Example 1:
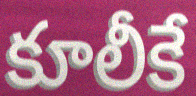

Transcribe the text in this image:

కూలీకే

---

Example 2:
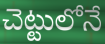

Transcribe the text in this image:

చెట్టులోనే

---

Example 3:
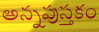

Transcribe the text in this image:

అన్నపుస్తకం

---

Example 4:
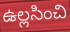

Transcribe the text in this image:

ఉల్లసించి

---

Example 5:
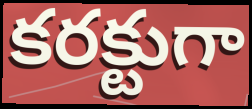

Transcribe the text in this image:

కరక్టుగా